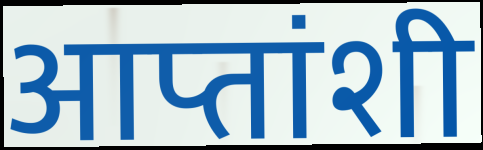
आप्तांशी